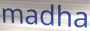
madha